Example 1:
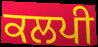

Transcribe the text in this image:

ਕਲਪੀ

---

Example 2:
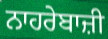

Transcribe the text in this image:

ਨਾਹਰੇਬਾਜ਼ੀ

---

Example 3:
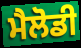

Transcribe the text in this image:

ਮੈਲੋਡੀ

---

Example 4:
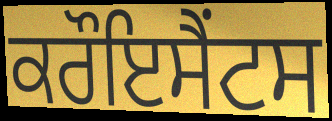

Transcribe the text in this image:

ਕਰੌਇਸੈਂਟਸ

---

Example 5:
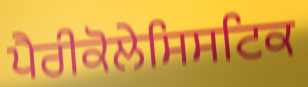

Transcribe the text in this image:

ਪੈਰੀਕੋਲੇਸਿਸਟਿਕ